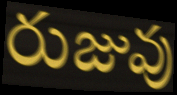
రుజువు